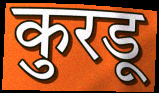
कुरडू